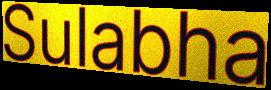
Sulabha